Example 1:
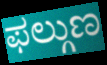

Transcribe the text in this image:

ಫಲ್ಗುಣ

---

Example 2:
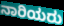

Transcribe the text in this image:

ನಾರಿಯರು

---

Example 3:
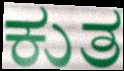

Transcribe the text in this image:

ಕುತ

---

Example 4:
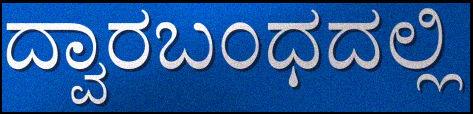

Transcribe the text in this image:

ದ್ವಾರಬಂಧದಲ್ಲಿ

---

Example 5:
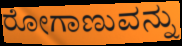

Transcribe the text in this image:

ರೋಗಾಣುವನ್ನು